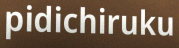
pidichiruku